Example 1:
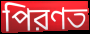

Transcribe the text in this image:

পিরণত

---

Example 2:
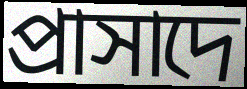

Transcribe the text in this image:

প্রাসাদে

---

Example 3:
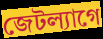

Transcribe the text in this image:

জেটল্যাগে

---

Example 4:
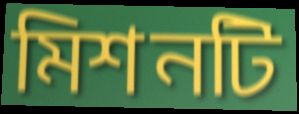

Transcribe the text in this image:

মিশনটি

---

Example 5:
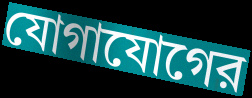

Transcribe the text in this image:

যোগাযোগের